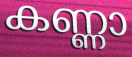
കണ്ണാ